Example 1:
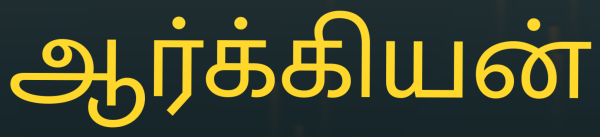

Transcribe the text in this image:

ஆர்க்கியன்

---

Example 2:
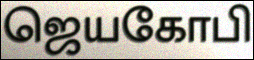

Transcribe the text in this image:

ஜெயகோபி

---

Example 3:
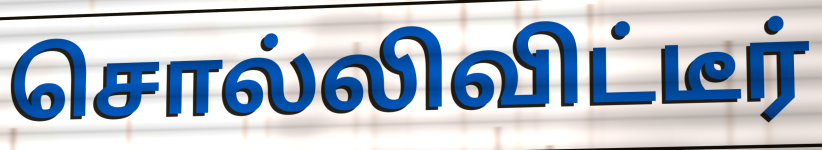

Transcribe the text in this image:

சொல்லிவிட்டீர்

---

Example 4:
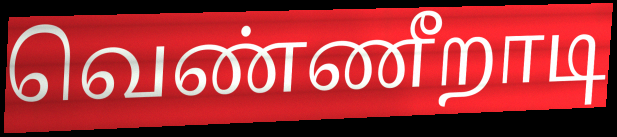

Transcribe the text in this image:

வெண்ணீறாடி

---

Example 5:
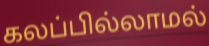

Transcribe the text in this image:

கலப்பில்லாமல்